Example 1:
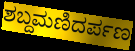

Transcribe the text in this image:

ಶಬ್ದಮಣಿದರ್ಪಣ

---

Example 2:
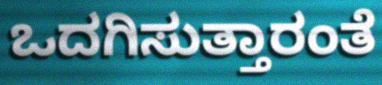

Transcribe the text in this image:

ಒದಗಿಸುತ್ತಾರಂತೆ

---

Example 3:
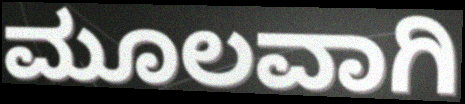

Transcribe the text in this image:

ಮೂಲವಾಗಿ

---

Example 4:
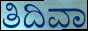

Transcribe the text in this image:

ತಿದಿವಾ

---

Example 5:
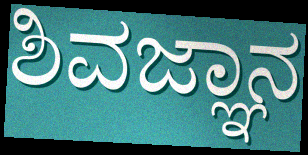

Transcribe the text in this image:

ಶಿವಜ್ಞಾನ